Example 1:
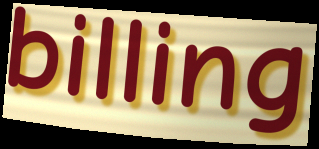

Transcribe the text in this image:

billing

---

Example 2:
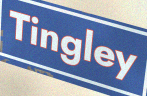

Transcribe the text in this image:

Tingley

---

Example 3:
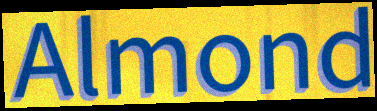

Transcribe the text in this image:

Almond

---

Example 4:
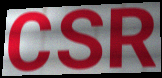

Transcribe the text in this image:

CSR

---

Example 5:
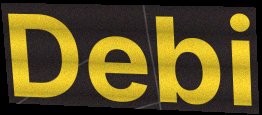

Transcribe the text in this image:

Debi